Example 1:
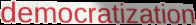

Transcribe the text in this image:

democratization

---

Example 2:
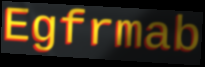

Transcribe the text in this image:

Egfrmab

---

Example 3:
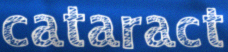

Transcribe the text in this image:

cataract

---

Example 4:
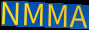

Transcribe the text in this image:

NMMA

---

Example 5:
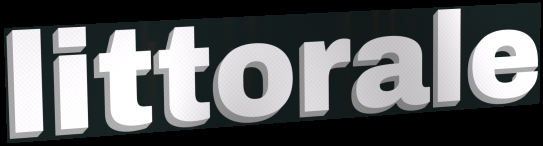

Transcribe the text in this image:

littorale